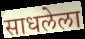
साधलेला